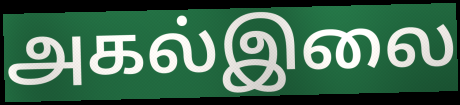
அகல்இலை